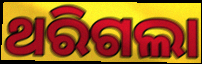
ଥରିଗଲା